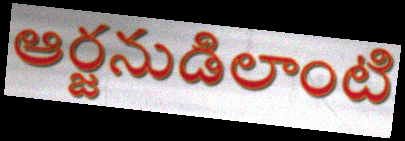
ఆర్జనుడిలాంటి